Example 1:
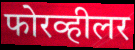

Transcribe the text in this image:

फोरव्हीलर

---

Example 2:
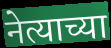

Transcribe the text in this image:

नेत्याच्या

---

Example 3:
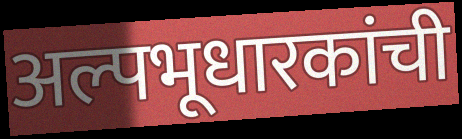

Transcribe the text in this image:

अल्पभूधारकांची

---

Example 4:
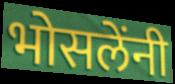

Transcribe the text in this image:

भोसलेंनी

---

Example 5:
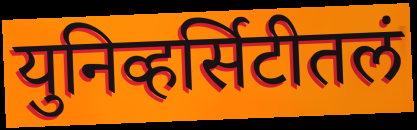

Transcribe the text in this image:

युनिव्हर्सिटीतलं